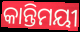
କାନ୍ତିମୟୀ